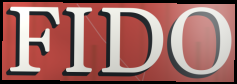
FIDO